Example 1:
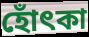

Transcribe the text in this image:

হোঁৎকা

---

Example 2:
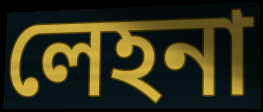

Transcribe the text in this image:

লেহনা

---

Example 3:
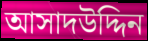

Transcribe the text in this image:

আসাদউদ্দিন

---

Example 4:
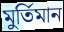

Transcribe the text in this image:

মুর্তিমান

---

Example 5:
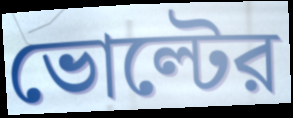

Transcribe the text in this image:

ভোল্টের